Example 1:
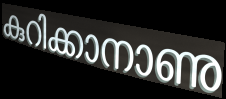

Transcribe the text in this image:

കുറിക്കാനാണു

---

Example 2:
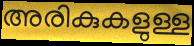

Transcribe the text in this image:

അരികുകളുള്ള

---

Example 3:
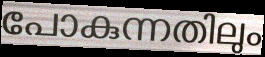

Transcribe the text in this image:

പോകുന്നതിലും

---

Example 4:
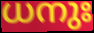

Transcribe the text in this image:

ധനുഃ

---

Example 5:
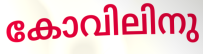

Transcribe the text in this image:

കോവിലിനു